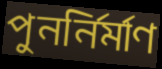
পুনৰ্নিৰ্মাণ